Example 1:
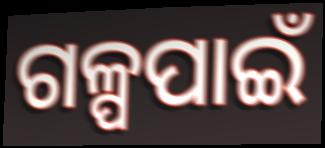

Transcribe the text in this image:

ଗଳ୍ପପାଇଁ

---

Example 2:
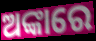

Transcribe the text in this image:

ଅଙ୍କାରେ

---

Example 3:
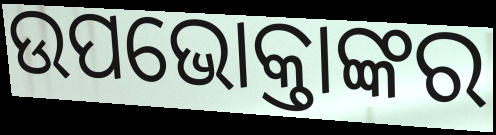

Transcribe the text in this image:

ଉପଭୋକ୍ତାଙ୍କର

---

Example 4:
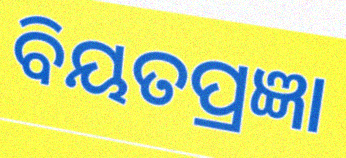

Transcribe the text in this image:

ବିୟତପ୍ରଜ୍ଞା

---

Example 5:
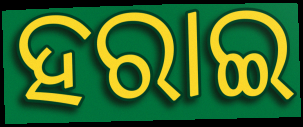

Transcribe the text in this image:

ହରାଇ